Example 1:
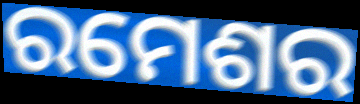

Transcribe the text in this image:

ରମେଶର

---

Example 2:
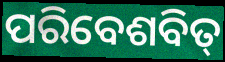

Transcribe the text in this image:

ପରିବେଶବିତ୍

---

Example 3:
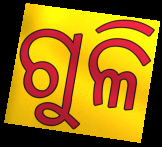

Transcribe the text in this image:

ଗୁଳି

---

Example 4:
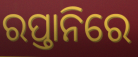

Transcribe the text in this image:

ରପ୍ତାନିରେ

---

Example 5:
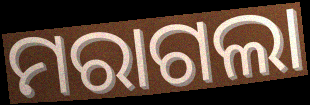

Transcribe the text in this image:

ମରାଗଲା